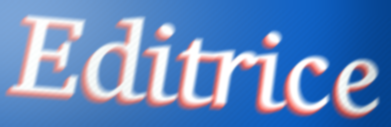
Editrice